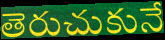
తెరుచుకునే